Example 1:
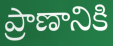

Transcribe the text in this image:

ప్రాణానికి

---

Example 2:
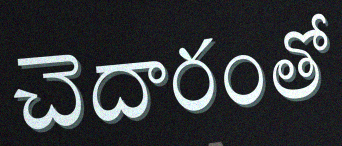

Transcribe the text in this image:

చెదారంతో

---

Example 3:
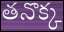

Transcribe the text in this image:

తనొక్క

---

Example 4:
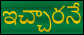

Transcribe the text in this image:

ఇచ్చారనే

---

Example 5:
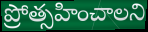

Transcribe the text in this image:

ప్రోత్సహించాలని